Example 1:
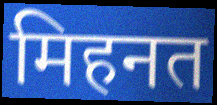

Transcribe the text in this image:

मिहनत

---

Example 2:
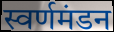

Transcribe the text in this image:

स्वर्णमंडन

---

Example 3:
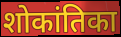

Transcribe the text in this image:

शोकांतिका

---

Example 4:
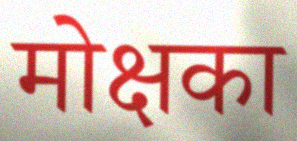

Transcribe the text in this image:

मोक्षका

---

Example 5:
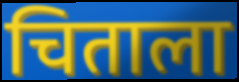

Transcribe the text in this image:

चिताला